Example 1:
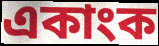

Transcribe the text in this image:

একাংক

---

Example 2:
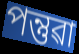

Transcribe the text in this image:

পন্তুৱা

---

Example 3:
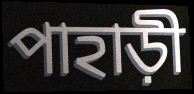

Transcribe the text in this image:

পাহাড়ী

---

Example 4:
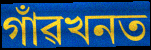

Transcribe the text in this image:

গাঁৱখনত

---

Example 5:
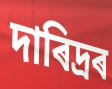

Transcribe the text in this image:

দাৰিদ্ৰৰ